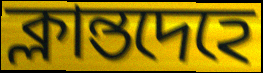
ক্লান্তদেহে